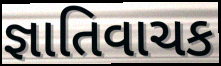
જ્ઞાતિવાચક